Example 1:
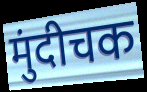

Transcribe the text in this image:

मुंदीचक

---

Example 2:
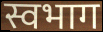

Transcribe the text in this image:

स्वभाग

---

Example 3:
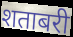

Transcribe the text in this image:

शताबरी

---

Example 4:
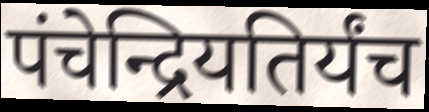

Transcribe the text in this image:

पंचेन्द्रियतिर्यंच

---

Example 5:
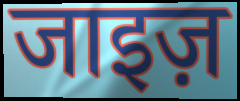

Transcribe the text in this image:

जाइज़